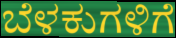
ಬೆಳಕುಗಳಿಗೆ